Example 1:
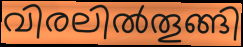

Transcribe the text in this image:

വിരലിൽതൂങ്ങി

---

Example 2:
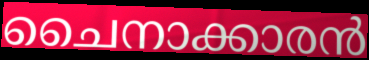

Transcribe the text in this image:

ചൈനാക്കാരൻ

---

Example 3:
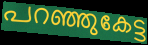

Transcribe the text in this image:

പറഞ്ഞുകേട്ട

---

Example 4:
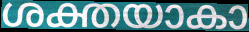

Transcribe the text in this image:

ശക്തയാകാ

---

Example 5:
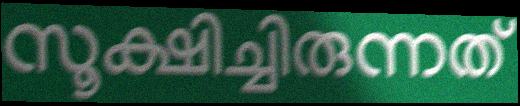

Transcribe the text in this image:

സൂക്ഷിച്ചിരുന്നത്